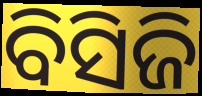
ବିସିଜି